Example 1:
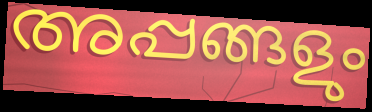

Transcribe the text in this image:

അപ്പങ്ങളും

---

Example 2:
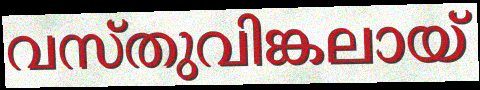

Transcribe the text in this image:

വസ്തുവിങ്കലായ്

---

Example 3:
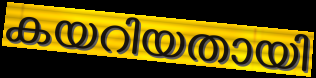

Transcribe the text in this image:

കയറിയതായി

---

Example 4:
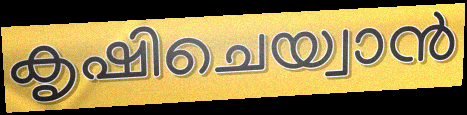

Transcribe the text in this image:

കൃഷിചെയ്വാൻ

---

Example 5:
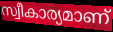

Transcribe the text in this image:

സ്വീകാര്യമാണ്